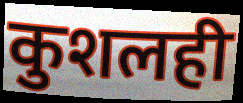
कुशलही